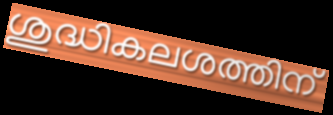
ശുദ്ധികലശത്തിന്